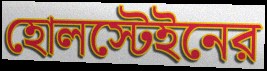
হোলস্টেইনের